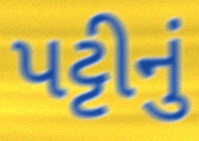
પટ્ટીનું